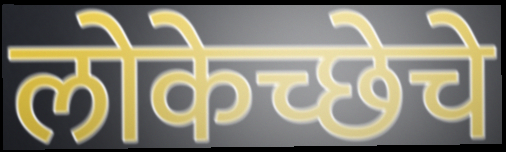
लोकेच्छेचे